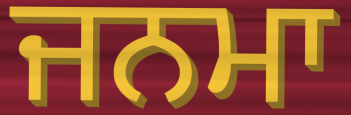
ਜਨਮਾ